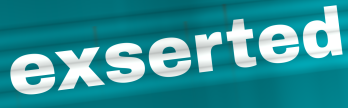
exserted